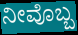
ನೀವೊಬ್ಬ